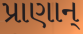
પ્રાણાન્